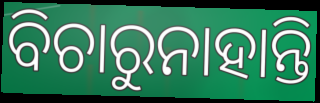
ବିଚାରୁନାହାନ୍ତି